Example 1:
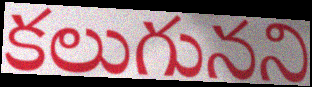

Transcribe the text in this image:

కలుగునని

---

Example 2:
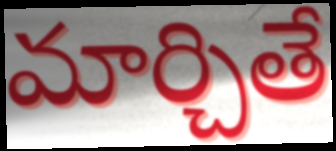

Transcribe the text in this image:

మార్చితే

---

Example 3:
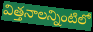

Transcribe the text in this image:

విత్తనాలన్నింటిలో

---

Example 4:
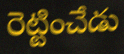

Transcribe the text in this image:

రెట్టించేడు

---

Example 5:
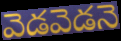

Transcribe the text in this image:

వెడవెడనె